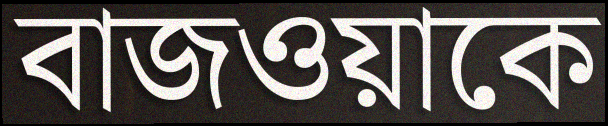
বাজওয়াকে